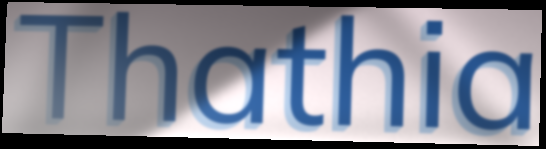
Thathia